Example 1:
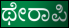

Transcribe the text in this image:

ಥೇರಾಪಿ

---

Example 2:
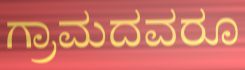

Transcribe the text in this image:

ಗ್ರಾಮದವರೂ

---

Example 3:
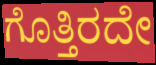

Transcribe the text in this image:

ಗೊತ್ತಿರದೇ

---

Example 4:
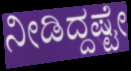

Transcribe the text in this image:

ನೀಡಿದ್ದಷ್ಟೇ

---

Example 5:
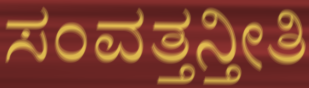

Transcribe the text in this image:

ಸಂವತ್ತನ್ತೀತಿ